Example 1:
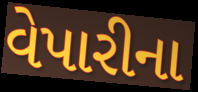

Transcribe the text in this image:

વેપારીના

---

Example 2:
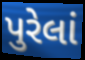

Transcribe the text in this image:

પુરેલાં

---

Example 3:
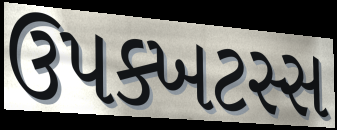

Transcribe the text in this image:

ઉપક્ખટસ્સ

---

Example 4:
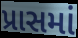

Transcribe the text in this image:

પ્રાસમાં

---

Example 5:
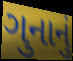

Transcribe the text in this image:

ગુનાનું